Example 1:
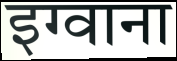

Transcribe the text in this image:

इग्वाना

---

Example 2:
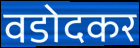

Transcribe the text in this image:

वडोदकर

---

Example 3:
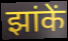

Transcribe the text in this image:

झांकें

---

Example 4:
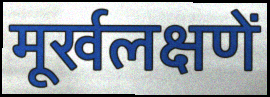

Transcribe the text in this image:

मूर्खलक्षणें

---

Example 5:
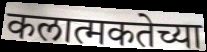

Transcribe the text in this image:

कलात्मकतेच्या